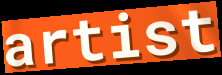
artist